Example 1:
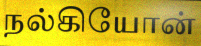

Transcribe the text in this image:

நல்கியோன்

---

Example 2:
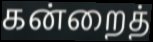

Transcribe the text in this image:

கன்றைத்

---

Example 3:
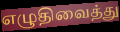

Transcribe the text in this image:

எழுதிவைத்து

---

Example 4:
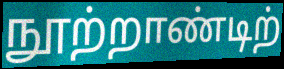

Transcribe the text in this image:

நூற்றாண்டிற்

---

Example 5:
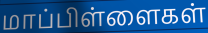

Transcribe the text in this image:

மாப்பிள்ளைகள்